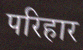
परिहार